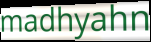
madhyahn